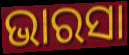
ଭାରସା